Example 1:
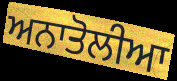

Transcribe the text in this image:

ਅਨਾਤੋਲੀਆ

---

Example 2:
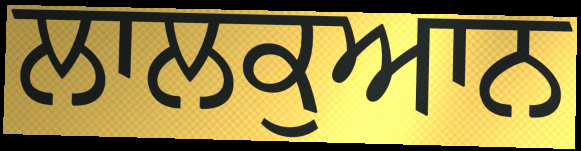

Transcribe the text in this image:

ਲਾਲਕੁਆਨ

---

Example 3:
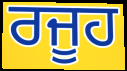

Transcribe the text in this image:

ਰਜੂਹ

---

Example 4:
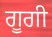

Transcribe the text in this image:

ਗੂਗੀ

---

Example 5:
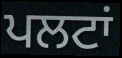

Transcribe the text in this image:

ਪਲਟਾਂ